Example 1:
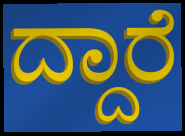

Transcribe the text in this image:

ದ್ದಾರೆ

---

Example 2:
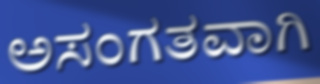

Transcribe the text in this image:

ಅಸಂಗತವಾಗಿ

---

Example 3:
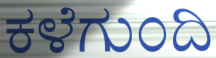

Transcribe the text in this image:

ಕಳೆಗುಂದಿ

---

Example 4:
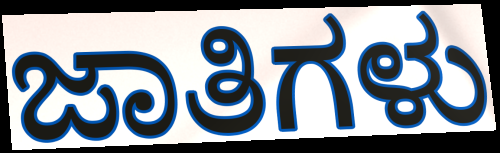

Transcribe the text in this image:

ಜಾತಿಗಳು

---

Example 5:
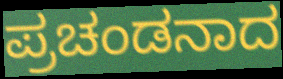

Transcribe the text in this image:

ಪ್ರಚಂಡನಾದ